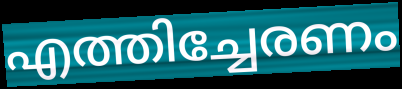
എത്തിച്ചേരണം